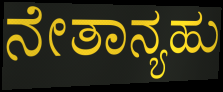
ನೇತಾನ್ಯಹು